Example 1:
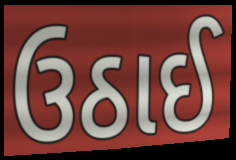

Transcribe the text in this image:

ઉઠાઈ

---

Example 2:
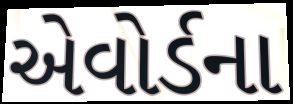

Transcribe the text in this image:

એવોર્ડના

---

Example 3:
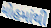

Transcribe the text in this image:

મોહમાંથી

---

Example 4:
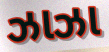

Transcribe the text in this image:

ઝાઝા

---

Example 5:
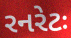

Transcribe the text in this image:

રનરેટઃ